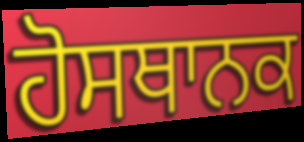
ਹੋਸਥਾਨਕ